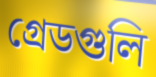
গ্রেডগুলি